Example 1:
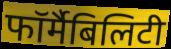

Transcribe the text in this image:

फॉर्मैबिलिटी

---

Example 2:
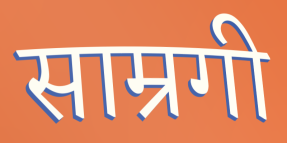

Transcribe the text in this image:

साम्रगी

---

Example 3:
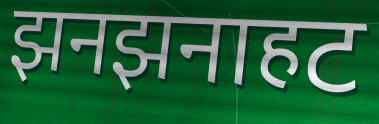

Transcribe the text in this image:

झनझनाहट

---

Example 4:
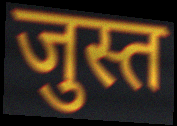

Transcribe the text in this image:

जुस्त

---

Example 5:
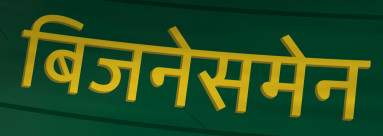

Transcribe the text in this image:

बिजनेसमेन